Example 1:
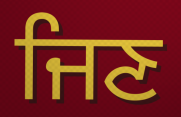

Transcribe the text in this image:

ਜਿਣ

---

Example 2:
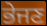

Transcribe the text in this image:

ਭੇਜਣ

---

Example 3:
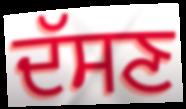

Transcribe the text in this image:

ਦੱਸਣ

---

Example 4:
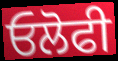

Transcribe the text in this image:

ਓਲੋਫੀ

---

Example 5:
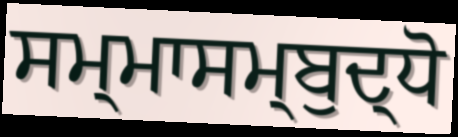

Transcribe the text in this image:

ਸਮ੍ਮਾਸਮ੍ਬੁਦ੍ਧੋ